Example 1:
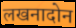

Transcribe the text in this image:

लखनादोन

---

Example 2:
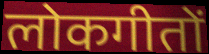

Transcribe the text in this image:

लोकगीतों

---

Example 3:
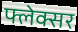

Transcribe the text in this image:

फ्लेक्सर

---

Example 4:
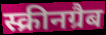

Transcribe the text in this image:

स्क्रीनग्रैब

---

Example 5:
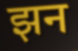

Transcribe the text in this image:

झन